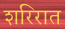
शरिरात